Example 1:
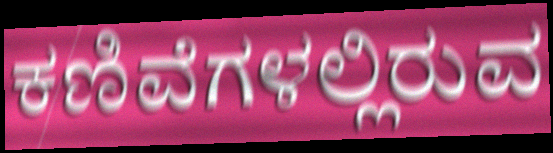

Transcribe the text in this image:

ಕಣಿವೆಗಳಲ್ಲಿರುವ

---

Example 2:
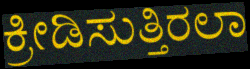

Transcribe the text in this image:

ಕ್ರೀಡಿಸುತ್ತಿರಲಾ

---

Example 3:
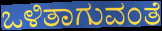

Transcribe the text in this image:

ಒಳಿತಾಗುವಂತೆ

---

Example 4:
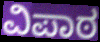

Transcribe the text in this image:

ವಿಪಾಠ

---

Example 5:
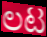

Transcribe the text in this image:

ಲಟ